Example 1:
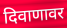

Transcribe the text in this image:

दिवाणावर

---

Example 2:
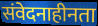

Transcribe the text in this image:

संवेदनाहीनता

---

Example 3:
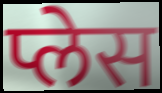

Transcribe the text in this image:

प्लेस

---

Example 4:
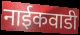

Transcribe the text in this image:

नाईकवाडी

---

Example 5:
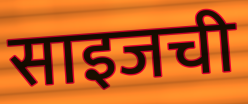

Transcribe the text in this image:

साइजची